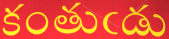
కంతుఁడు